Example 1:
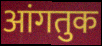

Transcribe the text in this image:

आंगतुक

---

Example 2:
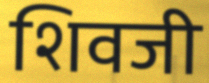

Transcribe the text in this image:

शिवजी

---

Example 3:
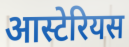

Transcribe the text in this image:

आस्टेरियस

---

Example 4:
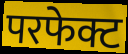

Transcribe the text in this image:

परफेक्ट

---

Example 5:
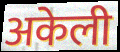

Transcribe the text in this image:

अकेली